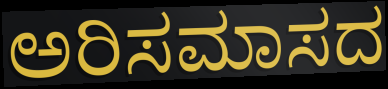
ಅರಿಸಮಾಸದ